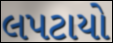
લપટાયો